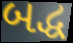
બદ્ધ